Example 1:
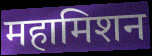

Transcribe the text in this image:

महामिशन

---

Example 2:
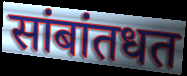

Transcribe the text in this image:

सांबांतधत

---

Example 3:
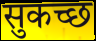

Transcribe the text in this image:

सुकच्छ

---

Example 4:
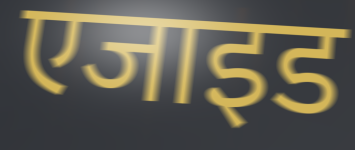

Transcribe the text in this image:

एजाइड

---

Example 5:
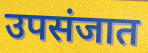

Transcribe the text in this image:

उपसंजात